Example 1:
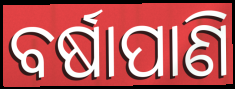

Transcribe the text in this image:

ବର୍ଷାପାଣି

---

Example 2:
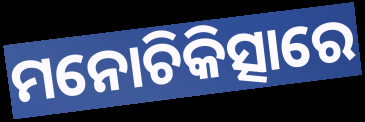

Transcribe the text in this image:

ମନୋଚିକିତ୍ସାରେ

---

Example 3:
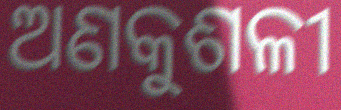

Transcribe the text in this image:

ଅଣକୁଶଳୀ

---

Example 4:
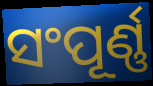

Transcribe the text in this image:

ସଂପୂର୍ଣ୍ଣ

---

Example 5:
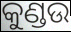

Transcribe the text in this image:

କୁଣ୍ଡଉ